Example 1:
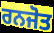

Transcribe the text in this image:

ਰਨਜੋਤ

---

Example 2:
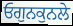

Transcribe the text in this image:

ਓਗੁਨਕੁਨਲੇ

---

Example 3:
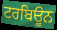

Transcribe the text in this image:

ਟਰਬਿਊਨ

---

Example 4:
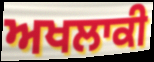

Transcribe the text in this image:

ਅਖਲਾਕੀ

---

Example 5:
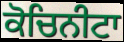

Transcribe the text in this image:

ਕੋਚਿਨੀਟਾ